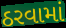
ઠરવામાં